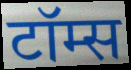
टॉम्स